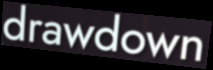
drawdown